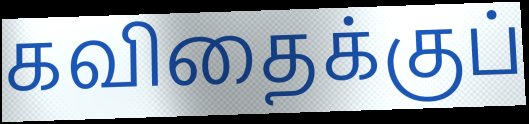
கவிதைக்குப்